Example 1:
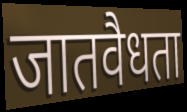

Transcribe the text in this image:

जातवैधता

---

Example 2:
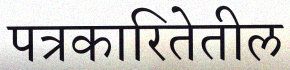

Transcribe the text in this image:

पत्रकारितेतील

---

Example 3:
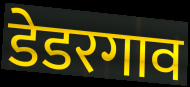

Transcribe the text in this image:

डेडरगाव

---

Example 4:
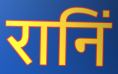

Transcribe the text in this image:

रानिं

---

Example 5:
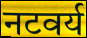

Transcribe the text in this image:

नटवर्य